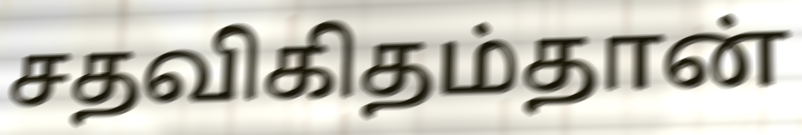
சதவிகிதம்தான்